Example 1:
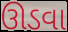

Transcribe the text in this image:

ઊડવા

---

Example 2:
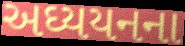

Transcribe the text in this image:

અઘ્યયનના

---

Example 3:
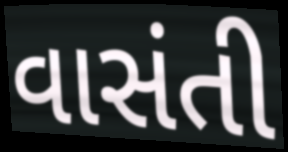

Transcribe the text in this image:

વાસંતી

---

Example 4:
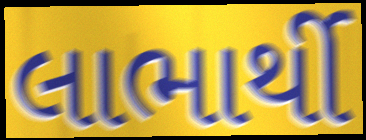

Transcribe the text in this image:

લાભાર્થી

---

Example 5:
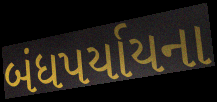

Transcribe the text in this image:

બંધપર્યાયના